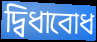
দ্বিধাবোধ